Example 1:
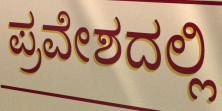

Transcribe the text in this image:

ಪ್ರವೇಶದಲ್ಲಿ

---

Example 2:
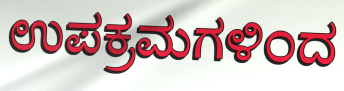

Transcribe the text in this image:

ಉಪಕ್ರಮಗಳಿಂದ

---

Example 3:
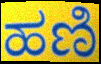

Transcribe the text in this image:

ಹಣಿ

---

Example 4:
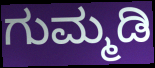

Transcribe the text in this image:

ಗುಮ್ಮಡಿ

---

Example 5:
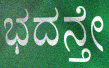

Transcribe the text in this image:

ಭದನ್ತೇ